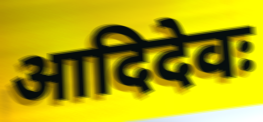
आदिदेवः